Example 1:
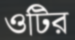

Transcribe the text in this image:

ওটির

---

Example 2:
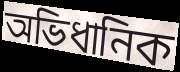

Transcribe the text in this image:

অভিধানিক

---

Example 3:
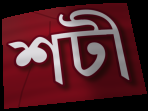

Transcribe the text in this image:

শটী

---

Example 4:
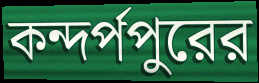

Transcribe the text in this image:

কন্দর্পপুরের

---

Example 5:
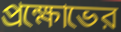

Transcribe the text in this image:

প্রক্ষোভের